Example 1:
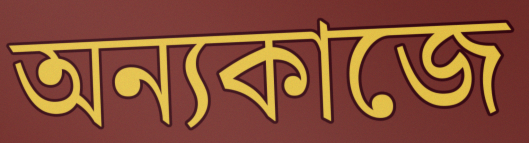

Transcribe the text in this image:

অন্যকাজে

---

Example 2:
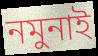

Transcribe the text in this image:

নমুনাই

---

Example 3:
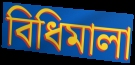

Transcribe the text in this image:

বিধিমালা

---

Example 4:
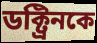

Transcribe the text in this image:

ডক্ট্রিনকে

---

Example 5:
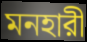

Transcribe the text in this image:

মনহারী